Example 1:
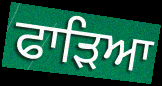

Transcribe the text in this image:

ਫਾੜਿਆ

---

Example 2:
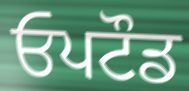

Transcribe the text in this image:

ਓਪਟੌਡ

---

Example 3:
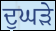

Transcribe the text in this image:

ਦੁਘੜੇ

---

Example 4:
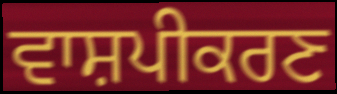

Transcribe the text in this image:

ਵਾਸ਼ਪੀਕਰਣ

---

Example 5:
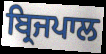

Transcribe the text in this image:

ਬ੍ਰਿਜਪਾਲ